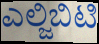
ಎಲ್ಜಿಬಿಟಿ